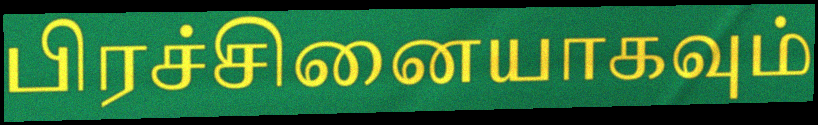
பிரச்சினையாகவும்